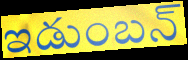
ఇడుంబన్